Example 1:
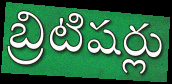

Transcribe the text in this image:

బ్రిటిషర్లు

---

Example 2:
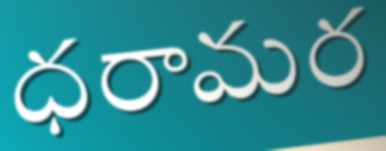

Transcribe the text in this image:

ధరామర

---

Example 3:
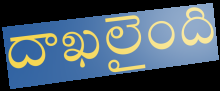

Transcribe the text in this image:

దాఖలైంది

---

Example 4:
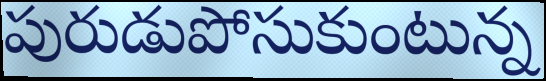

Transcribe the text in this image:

పురుడుపోసుకుంటున్న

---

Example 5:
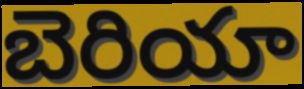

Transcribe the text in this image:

బెరియా